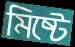
মিষ্টে